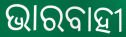
ଭାରବାହୀ